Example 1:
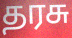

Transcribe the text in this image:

தரசு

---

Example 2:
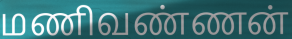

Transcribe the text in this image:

மணிவண்ணன்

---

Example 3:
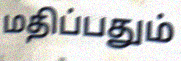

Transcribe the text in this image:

மதிப்பதும்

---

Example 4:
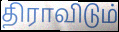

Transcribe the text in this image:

திராவிடும்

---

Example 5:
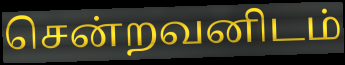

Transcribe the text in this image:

சென்றவனிடம்